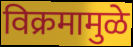
विक्रमामुळे